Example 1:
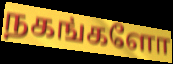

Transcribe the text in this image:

நகங்களோ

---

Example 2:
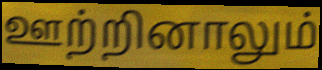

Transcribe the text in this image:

ஊற்றினாலும்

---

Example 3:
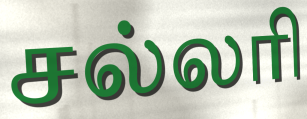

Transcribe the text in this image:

சல்லரி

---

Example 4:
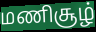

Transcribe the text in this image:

மணிசூழ்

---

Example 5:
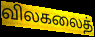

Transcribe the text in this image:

விலகலைத்